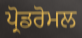
ਪ੍ਰੋਡਰੋਮਲ